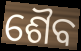
ଶୈବ